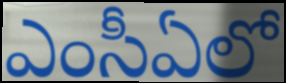
ఎంసీఏలో